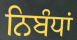
ਨਿਬੰਧਾਂ